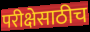
परीक्षेसाठीच